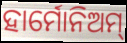
ହାର୍ମୋନିଅମ୍